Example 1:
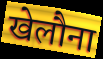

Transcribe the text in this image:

खेलौना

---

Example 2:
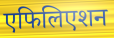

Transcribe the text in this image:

एफिलिएशन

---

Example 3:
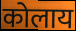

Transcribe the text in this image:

कोलाय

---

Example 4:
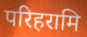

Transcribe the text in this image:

परिहरामि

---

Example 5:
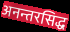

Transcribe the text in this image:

अनन्तरसिद्ध